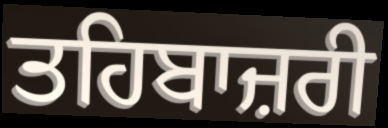
ਤਹਿਬਾਜ਼ਰੀ